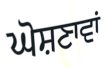
ਘੋਸ਼ਣਾਵਾਂ